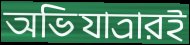
অভিযাত্রারই